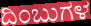
ದಿಂಬುಗಳ